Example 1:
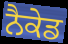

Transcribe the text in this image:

ਨੈਕੇਡ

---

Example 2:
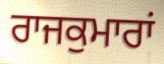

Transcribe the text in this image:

ਰਾਜਕੁਮਾਰਾਂ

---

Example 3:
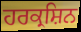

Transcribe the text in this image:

ਹਰਕ੍ਰਸ਼ਿਨ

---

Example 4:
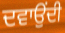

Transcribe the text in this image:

ਦਵਾਉਂਦੀ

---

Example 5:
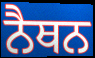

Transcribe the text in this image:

ਨੈਥਨ